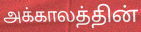
அக்காலத்தின்